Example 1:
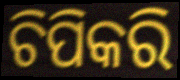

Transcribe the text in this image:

ଚିପିକରି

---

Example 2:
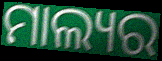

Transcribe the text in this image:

ମାଲ୍ୟର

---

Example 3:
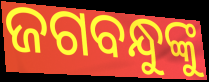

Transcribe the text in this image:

ଜଗବନ୍ଧୁଙ୍କୁ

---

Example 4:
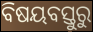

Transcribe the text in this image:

ବିଷୟବସ୍ତୁରୁ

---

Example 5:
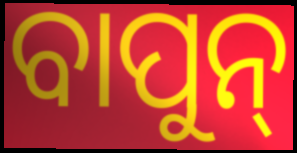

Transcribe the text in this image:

ବାପୁନ୍